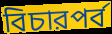
বিচারপর্ব